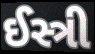
ઈસ્ત્રી